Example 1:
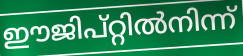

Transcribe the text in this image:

ഈജിപ്റ്റിൽനിന്ന്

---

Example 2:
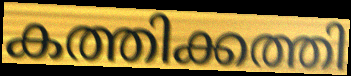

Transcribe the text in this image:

കത്തിക്കത്തി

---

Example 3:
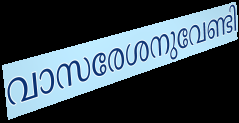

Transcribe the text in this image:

വാസരേശനുവേണ്ടി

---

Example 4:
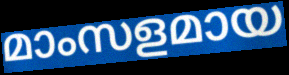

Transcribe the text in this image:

മാംസളമായ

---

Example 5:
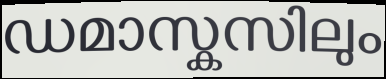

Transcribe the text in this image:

ഡമാസ്കസിലും